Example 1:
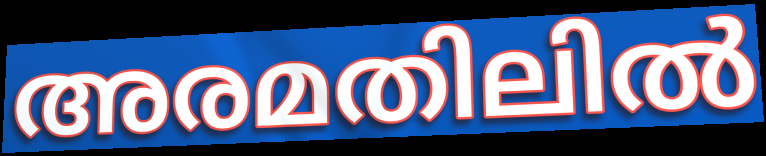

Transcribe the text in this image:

അരമതിലിൽ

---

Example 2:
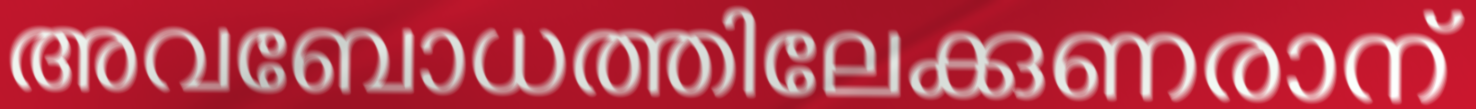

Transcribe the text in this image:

അവബോധത്തിലേക്കുണരാന്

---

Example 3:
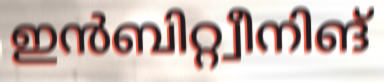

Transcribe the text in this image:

ഇൻബിറ്റ്വീനിങ്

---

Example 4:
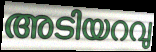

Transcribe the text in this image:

അടിയറവു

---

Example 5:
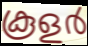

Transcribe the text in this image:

കൂളർ